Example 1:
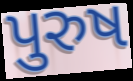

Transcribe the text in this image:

પુરુષ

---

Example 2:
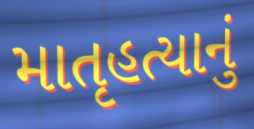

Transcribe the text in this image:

માતૃહત્યાનું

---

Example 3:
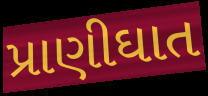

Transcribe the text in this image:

પ્રાણીઘાત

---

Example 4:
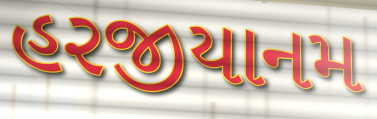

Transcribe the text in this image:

હરજીયાનમ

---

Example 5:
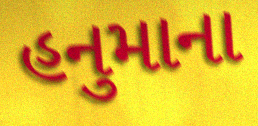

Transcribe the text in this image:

હનુમાના